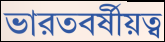
ভারতবর্ষীয়ত্ব